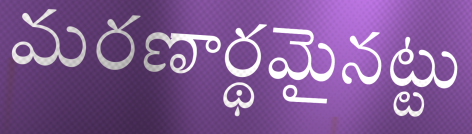
మరణార్థమైనట్టు